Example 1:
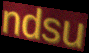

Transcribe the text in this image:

ndsu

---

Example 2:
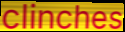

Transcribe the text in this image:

clinches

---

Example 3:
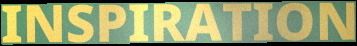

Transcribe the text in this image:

INSPIRATION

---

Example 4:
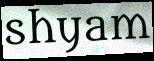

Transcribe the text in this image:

shyam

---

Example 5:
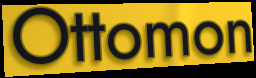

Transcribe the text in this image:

Ottomon